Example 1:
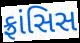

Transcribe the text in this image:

ફ્રાંસિસ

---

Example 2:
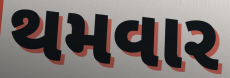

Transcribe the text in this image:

થમવાર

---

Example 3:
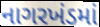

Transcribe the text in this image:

નાગરખંડમાં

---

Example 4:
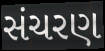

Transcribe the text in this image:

સંચરણ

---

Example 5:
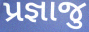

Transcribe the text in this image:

પ્રજ્ઞાજુ